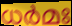
ധർമഃ